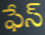
ఫేస్